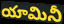
యామినీ